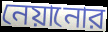
নেয়ানোর